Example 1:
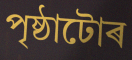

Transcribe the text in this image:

পৃষ্ঠাটোৰ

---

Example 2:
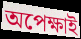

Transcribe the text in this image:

অপেক্ষাই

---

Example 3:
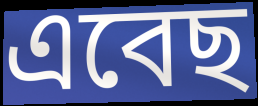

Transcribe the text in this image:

এবেছ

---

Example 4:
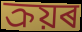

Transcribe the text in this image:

ক্ৰয়ৰ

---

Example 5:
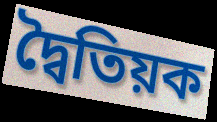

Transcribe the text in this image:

দ্বৈতিয়ক